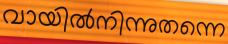
വായിൽനിന്നുതന്നെ